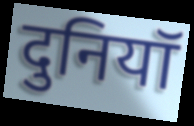
दुनियॉ